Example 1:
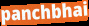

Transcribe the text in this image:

panchbhai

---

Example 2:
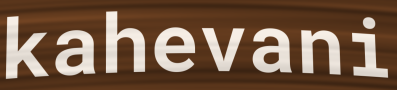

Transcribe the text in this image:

kahevani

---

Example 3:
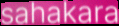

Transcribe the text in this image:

sahakara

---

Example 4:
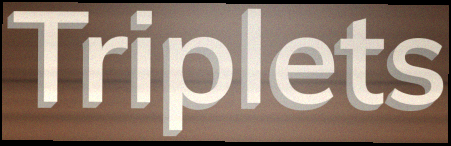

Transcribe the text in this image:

Triplets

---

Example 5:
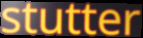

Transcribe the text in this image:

stutter